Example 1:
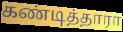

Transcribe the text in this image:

கண்டித்தாரா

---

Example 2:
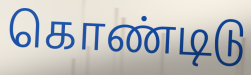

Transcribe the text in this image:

கொண்டிடு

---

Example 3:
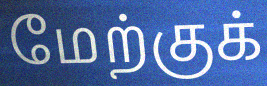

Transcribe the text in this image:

மேற்குக்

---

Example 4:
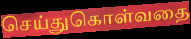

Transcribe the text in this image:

செய்துகொள்வதை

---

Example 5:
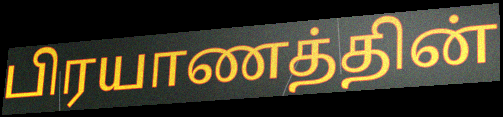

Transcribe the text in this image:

பிரயாணத்தின்